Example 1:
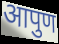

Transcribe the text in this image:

आपुण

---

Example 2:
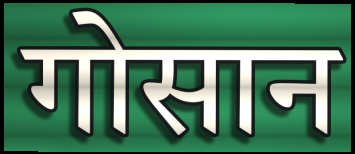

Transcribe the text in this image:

गोसान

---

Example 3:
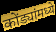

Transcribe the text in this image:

कोंड्यांमध्ये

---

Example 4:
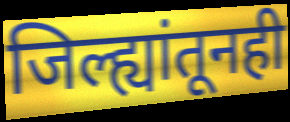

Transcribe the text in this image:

जिल्ह्यांतूनही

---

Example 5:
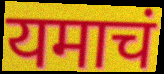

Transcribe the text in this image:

यमाचं